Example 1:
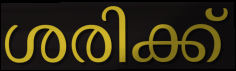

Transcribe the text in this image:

ശരിക്ക്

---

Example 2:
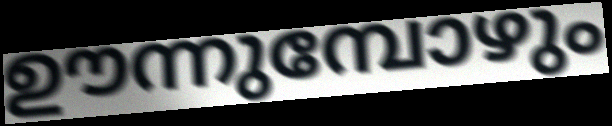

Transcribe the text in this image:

ഊന്നുമ്പോഴും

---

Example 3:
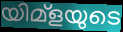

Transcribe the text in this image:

യിമ്ളയുടെ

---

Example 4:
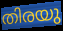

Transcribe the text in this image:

തിരയു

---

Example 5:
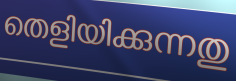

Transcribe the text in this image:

തെളിയിക്കുന്നതു